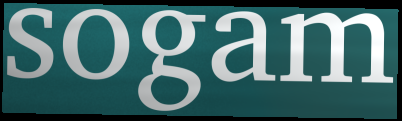
sogam